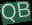
QB